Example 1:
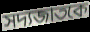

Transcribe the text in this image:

সদ্যজাতকে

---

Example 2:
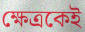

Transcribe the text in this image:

ক্ষেত্রকেই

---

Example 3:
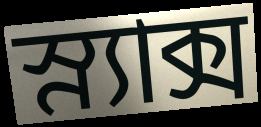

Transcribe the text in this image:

স্ন্যাক্স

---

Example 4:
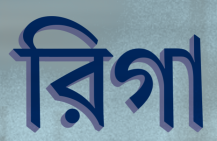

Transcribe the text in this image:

রিগা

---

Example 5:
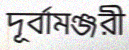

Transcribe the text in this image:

দূর্বামঞ্জরী